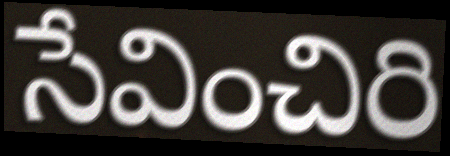
సేవించిరి